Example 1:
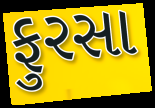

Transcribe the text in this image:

ફુરસા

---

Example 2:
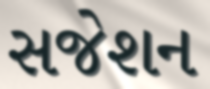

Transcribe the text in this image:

સજેશન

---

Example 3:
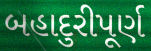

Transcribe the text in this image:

બહાદુરીપૂર્ણ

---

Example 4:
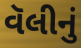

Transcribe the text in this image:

વૅલીનું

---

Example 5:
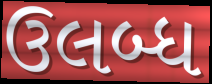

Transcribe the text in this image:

ઉલબ્ધ